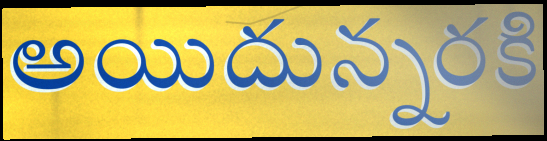
అయిదున్నరకి